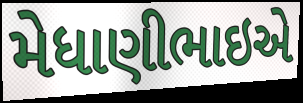
મેધાણીભાઇએ